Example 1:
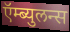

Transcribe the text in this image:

ऍम्ब्युलन्स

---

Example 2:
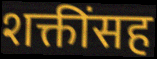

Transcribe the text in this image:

शक्तींसह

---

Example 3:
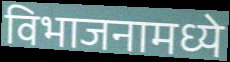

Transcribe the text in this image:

विभाजनामध्ये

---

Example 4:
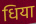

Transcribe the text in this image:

धिया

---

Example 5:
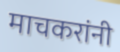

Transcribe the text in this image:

माचकरांनी